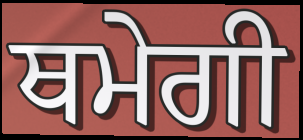
ਥਮੇਗੀ